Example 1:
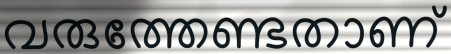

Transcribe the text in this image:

വരുത്തേണ്ടതാണ്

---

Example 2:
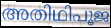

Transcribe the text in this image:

അതിഥിപൂജ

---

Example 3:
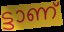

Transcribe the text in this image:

ട്ടാണ്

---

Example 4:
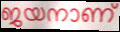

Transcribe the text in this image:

ജയനാണ്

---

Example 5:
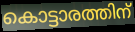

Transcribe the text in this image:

കൊട്ടാരത്തിന്